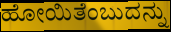
ಹೋಯಿತೆಂಬುದನ್ನು